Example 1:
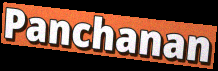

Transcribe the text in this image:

Panchanan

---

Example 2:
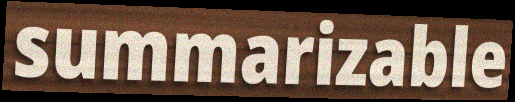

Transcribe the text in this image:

summarizable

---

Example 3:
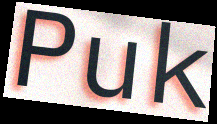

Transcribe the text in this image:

Puk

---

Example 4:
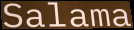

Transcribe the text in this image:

Salama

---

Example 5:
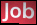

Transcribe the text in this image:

Job